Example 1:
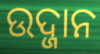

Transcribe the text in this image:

ଉଦ୍ଜାନ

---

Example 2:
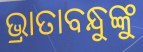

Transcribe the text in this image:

ଭ୍ରାତାବନ୍ଧୁଙ୍କୁ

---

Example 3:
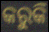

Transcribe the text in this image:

କରୁକି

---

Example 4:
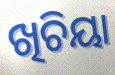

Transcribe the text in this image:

ଖିଚିୟା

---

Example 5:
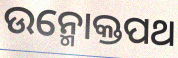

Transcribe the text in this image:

ଉନ୍ମୋକ୍ତପଥ